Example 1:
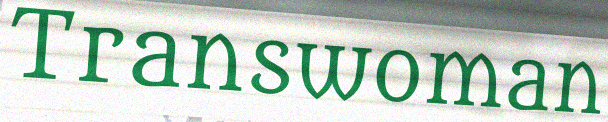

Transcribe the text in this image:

Transwoman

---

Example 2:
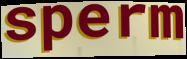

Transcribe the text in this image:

sperm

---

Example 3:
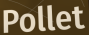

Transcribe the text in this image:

Pollet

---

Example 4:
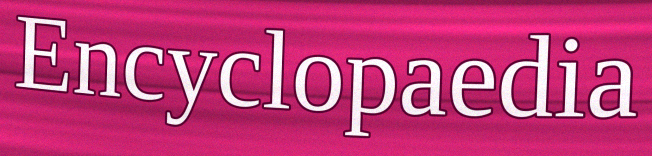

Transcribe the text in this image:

Encyclopaedia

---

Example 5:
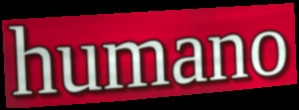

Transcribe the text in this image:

humano